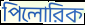
পিলোরিক